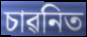
চাৱনিত